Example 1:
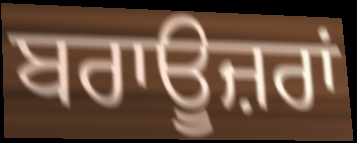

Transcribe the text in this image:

ਬਰਾਊਜ਼ਰਾਂ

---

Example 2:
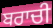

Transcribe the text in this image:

ਬਰਾਚੀ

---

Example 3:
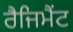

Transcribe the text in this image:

ਰੈਜਿਮੈਂਟ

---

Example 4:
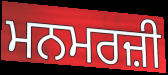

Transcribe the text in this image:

ਮਨਮਰਜ਼ੀ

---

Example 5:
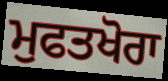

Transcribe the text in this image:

ਮੁਫਤਖੋਰਾ